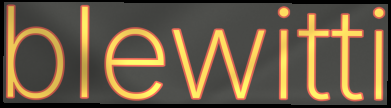
blewitti